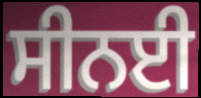
ਸੀਨਈ